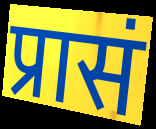
प्रासं